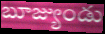
బూజ్యుండు